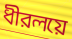
ধীরলয়ে